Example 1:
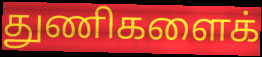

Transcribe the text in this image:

துணிகளைக்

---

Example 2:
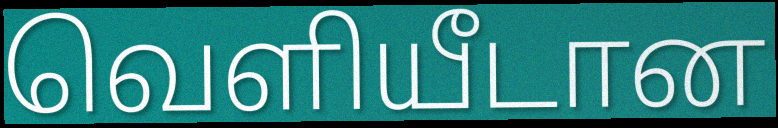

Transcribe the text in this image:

வெளியீடான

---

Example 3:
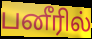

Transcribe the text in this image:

பனீரில்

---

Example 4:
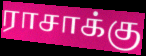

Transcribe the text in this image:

ராசாக்கு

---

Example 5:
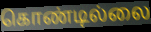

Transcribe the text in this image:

கொண்டில்லை